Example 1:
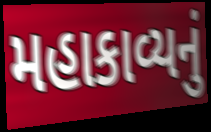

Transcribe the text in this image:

મહાકાવ્યનું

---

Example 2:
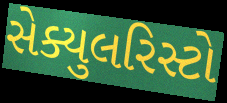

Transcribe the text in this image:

સેક્યુલરિસ્ટો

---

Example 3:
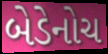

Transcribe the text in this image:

બેડેનોચ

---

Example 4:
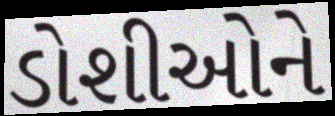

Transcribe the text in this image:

ડોશીઓને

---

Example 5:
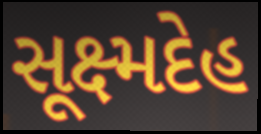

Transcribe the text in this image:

સૂક્ષ્મદેહ